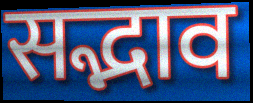
सद्भाव